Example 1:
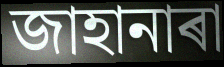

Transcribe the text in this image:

জাহানাৰা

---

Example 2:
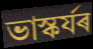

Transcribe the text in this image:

ভাস্কৰ্যৰ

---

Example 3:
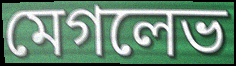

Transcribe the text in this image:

মেগলেভ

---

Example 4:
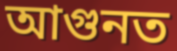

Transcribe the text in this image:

আগুনত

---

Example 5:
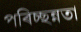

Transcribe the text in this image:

পৰিচ্ছন্নতা